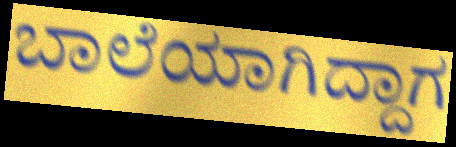
ಬಾಲೆಯಾಗಿದ್ದಾಗ